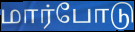
மார்போடு